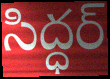
సిద్ధర్